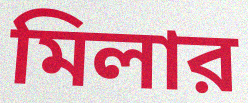
মিলার